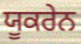
ਯੂਕਰੇਨ